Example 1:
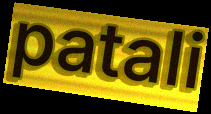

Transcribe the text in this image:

patali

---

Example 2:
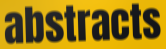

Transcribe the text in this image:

abstracts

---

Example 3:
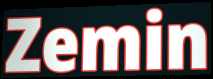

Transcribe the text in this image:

Zemin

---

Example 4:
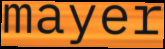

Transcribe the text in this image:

mayer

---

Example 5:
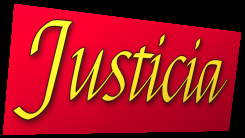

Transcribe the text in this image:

Justicia